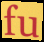
fu